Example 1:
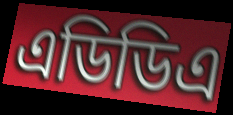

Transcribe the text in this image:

এডিডিএ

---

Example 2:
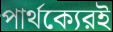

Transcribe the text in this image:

পার্থক্যেরই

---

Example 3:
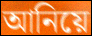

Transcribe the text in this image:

আনিয়ে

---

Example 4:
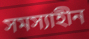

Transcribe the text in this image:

সমস্যাহীন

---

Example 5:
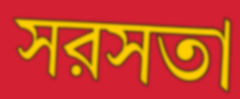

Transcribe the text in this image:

সরসতা